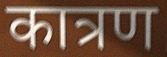
कात्रण